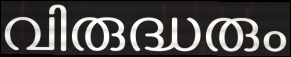
വിരുദ്ധരും